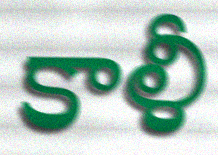
కాళీ